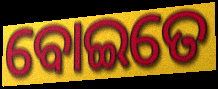
ବୋଇତେ